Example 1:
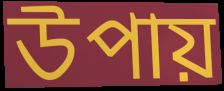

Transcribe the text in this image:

উপায়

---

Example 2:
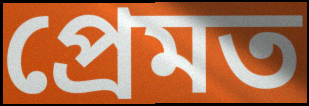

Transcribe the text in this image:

প্ৰেমত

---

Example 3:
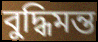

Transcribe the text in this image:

বুদ্ধিমন্ত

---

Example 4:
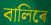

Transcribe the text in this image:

বালিৰে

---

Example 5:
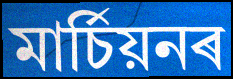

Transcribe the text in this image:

মাৰ্চিয়নৰ